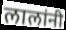
लालांनी